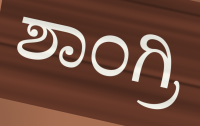
ಶಾಂಗ್ರಿ